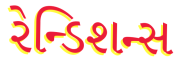
રેન્ડિશન્સ